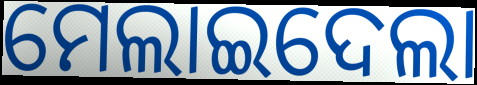
ମେଲାଇଦେଲା